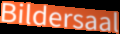
Bildersaal